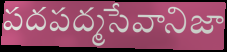
పదపద్మసేవానిజా